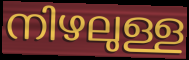
നിഴലുള്ള